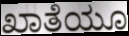
ಖಾತೆಯೂ